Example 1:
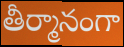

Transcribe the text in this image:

తీర్మానంగా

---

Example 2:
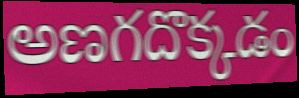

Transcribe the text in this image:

అణగదొక్కడం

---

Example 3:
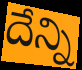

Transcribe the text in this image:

దేన్ని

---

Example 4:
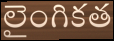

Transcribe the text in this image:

లైంగికత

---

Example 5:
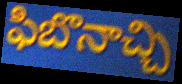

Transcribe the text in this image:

ఫిబొనాచ్చి